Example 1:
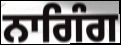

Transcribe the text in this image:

ਨਾਗਿੰਗ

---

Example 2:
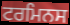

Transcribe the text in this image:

ਟਰਮਿਨਸ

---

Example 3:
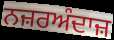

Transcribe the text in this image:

ਨਜ਼ਰਅੰਦਾਜ਼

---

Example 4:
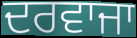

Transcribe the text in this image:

ਦਰਵਾਜਾ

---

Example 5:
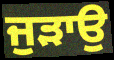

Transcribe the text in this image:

ਜੁੜਾਉ